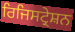
ਰਿਜਿਸਟ੍ਰੇਸ਼ਨ